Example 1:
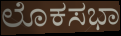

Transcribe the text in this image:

ಲೊಕಸಭಾ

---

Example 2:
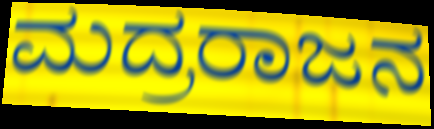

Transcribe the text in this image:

ಮದ್ರರಾಜನ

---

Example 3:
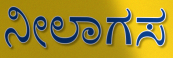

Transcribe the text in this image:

ನೀಲಾಗಸ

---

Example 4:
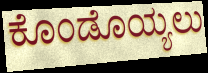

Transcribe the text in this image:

ಕೊಂಡೊಯ್ಯಲು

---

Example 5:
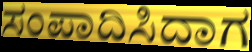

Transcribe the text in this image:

ಸಂಪಾದಿಸಿದಾಗ